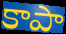
కాపా